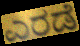
ಎರಡೆ